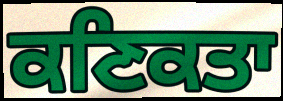
ਕਣਿਕਤਾ